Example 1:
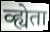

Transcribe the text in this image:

व्ह्येता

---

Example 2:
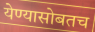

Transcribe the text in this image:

येण्यासोबतच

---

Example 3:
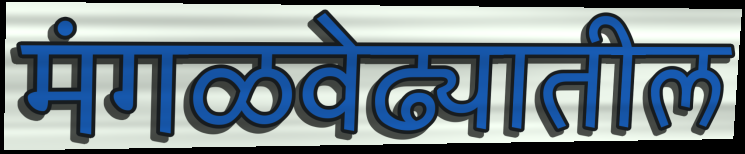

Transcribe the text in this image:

मंगळवेढ्यातील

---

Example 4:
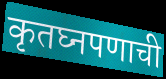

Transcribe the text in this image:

कृतघ्नपणाची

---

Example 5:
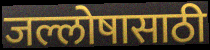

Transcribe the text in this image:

जल्लोषासाठी